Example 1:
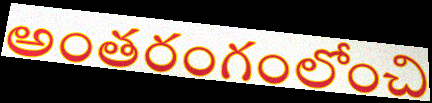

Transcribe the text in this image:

అంతరంగంలోంచి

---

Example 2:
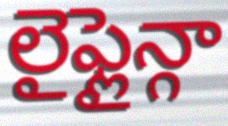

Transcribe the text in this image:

లైఫ్లైన్గా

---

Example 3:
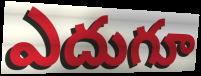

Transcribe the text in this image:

ఎదుగూ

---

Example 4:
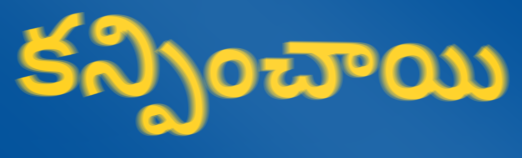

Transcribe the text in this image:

కన్పించాయి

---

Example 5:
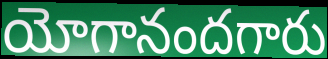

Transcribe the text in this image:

యోగానందగారు